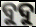
ବୁଦୁ